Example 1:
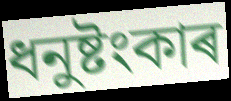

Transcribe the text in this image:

ধনুষ্টংকাৰ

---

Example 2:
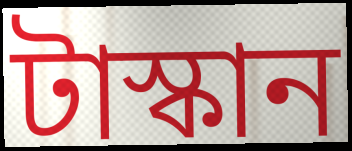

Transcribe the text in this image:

টাস্কান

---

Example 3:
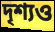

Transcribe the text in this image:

দৃশ্যও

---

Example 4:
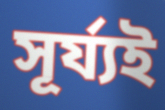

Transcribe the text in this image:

সূৰ্য্যই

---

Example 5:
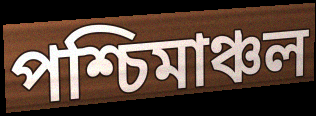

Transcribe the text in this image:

পশ্চিমাঞ্চল